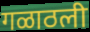
गळाठली